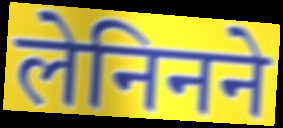
लेनिनने